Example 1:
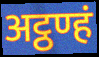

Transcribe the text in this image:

अट्ठण्हं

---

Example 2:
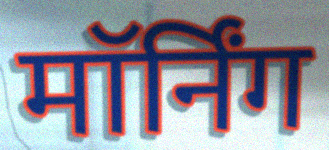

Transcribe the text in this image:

मॉर्निंग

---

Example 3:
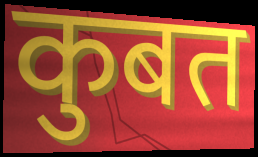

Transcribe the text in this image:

कुबत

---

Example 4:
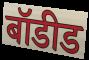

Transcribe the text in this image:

बॉडीड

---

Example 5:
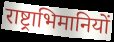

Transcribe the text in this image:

राष्ट्राभिमानियों